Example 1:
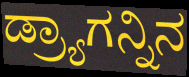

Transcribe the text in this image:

ಡ್ರ್ಯಾಗನ್ನಿನ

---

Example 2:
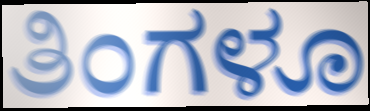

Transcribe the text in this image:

ತಿಂಗಳೂ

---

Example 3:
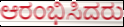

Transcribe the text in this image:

ಆರಂಭಿಸಿದರು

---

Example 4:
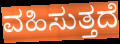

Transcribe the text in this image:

ವಹಿಸುತ್ತದೆ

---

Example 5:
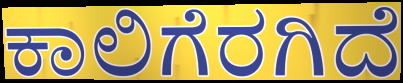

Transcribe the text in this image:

ಕಾಲಿಗೆರಗಿದೆ